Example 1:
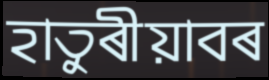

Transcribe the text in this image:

হাতুৰীয়াবৰ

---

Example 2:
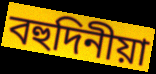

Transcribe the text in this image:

বহুদিনীয়া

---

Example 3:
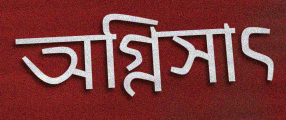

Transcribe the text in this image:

অগ্নিসাৎ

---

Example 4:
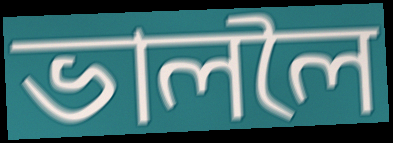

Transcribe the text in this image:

ভাললৈ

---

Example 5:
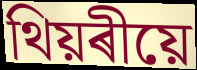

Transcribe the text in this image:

থিয়ৰীয়ে